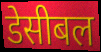
डेसीबल